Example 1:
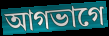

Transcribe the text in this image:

আগভাগে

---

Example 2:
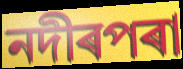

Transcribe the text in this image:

নদীৰপৰা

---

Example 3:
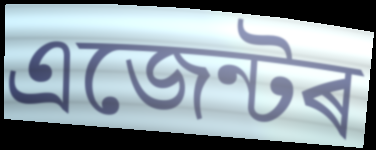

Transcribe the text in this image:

এজেন্টৰ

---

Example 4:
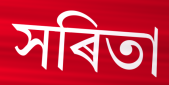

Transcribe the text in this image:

সৰিতা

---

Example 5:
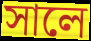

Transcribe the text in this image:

সালে